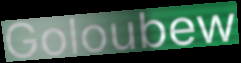
Goloubew